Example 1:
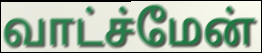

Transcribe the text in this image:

வாட்ச்மேன்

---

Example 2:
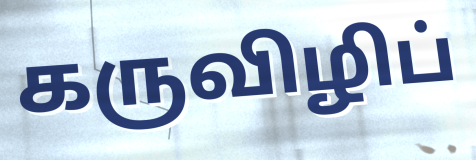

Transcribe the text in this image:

கருவிழிப்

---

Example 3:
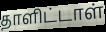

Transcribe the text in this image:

தாளிட்டாள்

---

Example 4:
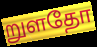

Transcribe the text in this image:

றுளதோ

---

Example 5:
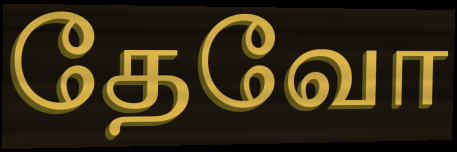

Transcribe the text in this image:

தேவோ